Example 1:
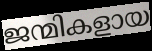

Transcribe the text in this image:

ജന്മികളായ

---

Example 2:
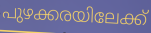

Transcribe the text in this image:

പുഴക്കരയിലേക്ക്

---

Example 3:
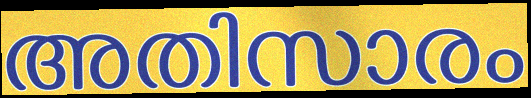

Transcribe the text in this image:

അതിസാരം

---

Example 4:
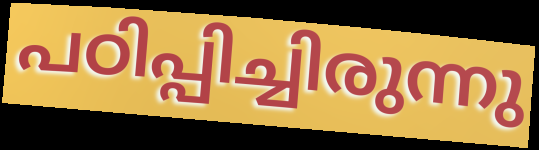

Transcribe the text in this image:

പഠിപ്പിച്ചിരുന്നു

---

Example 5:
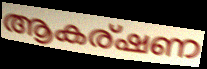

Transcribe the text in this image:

ആകര്ഷണ